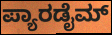
ಪ್ಯಾರಡೈಮ್